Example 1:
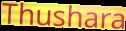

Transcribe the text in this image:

Thushara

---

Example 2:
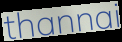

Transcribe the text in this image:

thannai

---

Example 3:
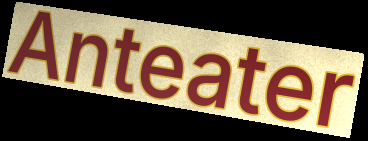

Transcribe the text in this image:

Anteater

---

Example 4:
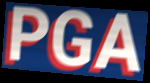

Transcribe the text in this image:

PGA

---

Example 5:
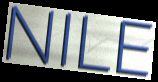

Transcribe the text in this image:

NILE